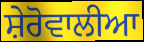
ਸ਼ੇਰੋਵਾਲੀਆ